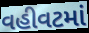
વહીવટમાં